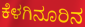
ಕೆಳಗಿನೂರಿನ